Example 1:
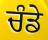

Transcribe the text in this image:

ਚੰਡੇ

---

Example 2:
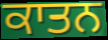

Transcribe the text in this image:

ਕਾਤਨ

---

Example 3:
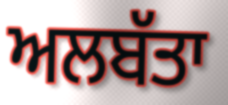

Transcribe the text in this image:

ਅਲਬੱਤਾ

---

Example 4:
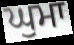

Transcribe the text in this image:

ਘੁਮਾ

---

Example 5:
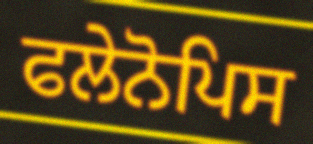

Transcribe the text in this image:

ਫਲੇਨੋਪਿਸ